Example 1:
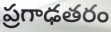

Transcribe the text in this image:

ప్రగాఢతరం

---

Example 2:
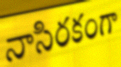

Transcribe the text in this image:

నాసిరకంగా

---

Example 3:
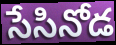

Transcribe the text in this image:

సేసినోడ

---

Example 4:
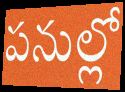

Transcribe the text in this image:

పనుల్లో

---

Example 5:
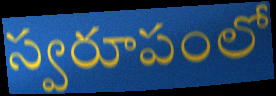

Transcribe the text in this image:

స్వరూపంలో